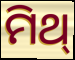
ମିଥ୍